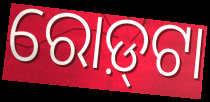
ରୋଡ଼୍‌ଟା